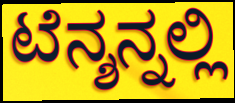
ಟೆನ್ಶನ್ನಲ್ಲಿ